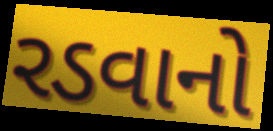
રડવાનો